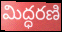
మిద్ధరణి